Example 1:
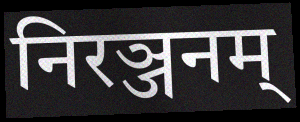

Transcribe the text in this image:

निरञ्जनम्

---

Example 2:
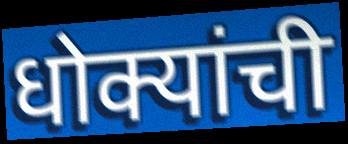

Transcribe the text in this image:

धोक्यांची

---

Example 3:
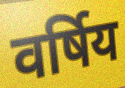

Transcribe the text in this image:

वर्षिय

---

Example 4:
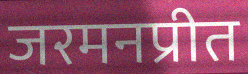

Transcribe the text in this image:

जरमनप्रीत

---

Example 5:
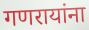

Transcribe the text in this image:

गणरायांना